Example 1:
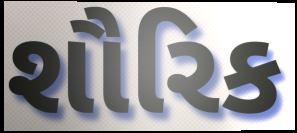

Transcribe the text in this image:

શૌરિક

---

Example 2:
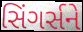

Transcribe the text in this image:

સિંગર્સને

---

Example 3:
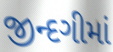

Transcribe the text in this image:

જીન્દગીમાં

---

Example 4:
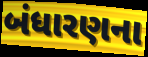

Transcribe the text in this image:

બંધારણના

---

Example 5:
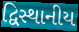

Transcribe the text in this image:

દ્વિસ્થાનીય